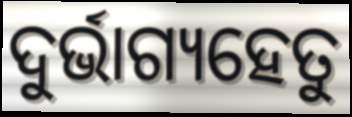
ଦୁର୍ଭାଗ୍ୟହେତୁ